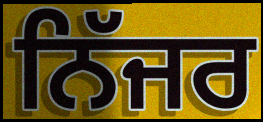
ਨਿੱਜਰ